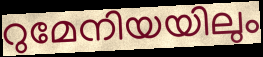
റുമേനിയയിലും